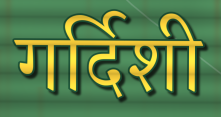
गर्दिशी